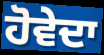
ਹੋਵੇਦਾ